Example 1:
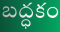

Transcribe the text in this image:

బద్ధకం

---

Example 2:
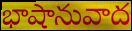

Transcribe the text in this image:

భాషానువాద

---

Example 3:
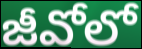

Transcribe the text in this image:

జీవోలో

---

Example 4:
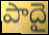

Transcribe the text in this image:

పాదై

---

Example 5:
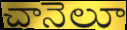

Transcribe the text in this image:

చానెలూ